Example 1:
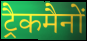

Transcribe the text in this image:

ट्रैकमैनों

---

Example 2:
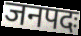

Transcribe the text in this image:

जनपदः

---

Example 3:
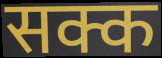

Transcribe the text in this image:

सक्क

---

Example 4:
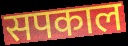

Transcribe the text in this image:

सपकाल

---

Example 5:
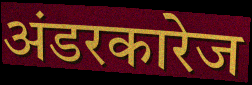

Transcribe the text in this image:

अंडरकारेज